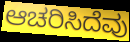
ಆಚರಿಸಿದೆವು